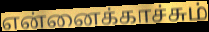
என்னைக்காச்சும்